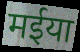
मईया